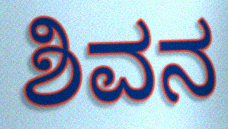
ಶಿವನ